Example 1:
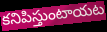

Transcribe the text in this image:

కనిపిస్తుంటాయట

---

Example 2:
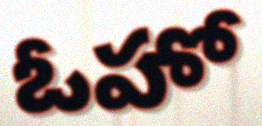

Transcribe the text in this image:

ఓహో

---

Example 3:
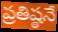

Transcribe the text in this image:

ప్రతిష్ఠనే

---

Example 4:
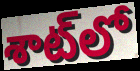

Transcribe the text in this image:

శాట్‌లో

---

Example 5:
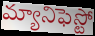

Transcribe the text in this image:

మ్యానిఫెస్టో